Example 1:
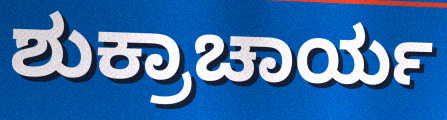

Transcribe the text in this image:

ಶುಕ್ರಾಚಾರ್ಯ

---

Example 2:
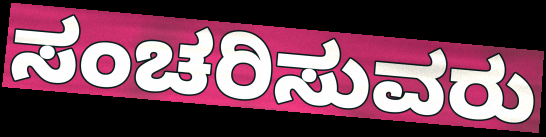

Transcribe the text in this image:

ಸಂಚರಿಸುವರು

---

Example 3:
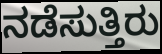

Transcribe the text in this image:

ನಡೆಸುತ್ತಿರು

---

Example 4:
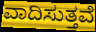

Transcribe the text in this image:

ವಾದಿಸುತ್ತವೆ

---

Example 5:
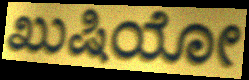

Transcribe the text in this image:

ಖುಷಿಯೋ